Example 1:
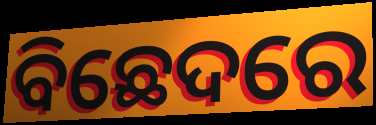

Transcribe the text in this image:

ବିଛେଦରେ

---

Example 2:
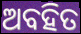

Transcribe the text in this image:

ଅବହିତ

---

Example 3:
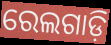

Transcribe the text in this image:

ରେଲଗାଡ଼ି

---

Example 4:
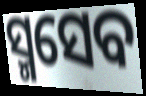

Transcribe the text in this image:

ସ୍ମସେବ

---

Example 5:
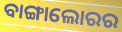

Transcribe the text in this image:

ବାଙ୍ଗାଲୋରର